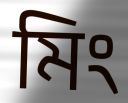
মিং